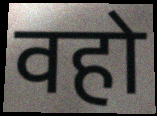
वहो